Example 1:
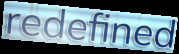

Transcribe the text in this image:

redefined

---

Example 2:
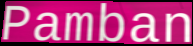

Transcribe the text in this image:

Pamban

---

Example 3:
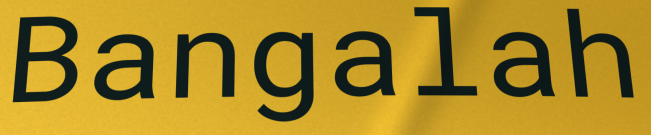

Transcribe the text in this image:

Bangalah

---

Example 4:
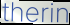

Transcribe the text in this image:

therin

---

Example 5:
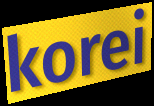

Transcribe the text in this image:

korei